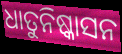
ଧାତୁନିଷ୍କାସନ